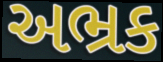
અભ્રક